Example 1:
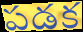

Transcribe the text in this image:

పడక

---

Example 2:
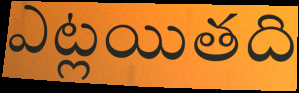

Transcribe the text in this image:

ఎట్లయితది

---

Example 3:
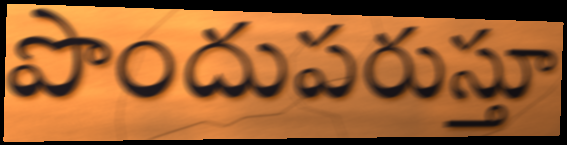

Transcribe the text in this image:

పొందుపరుస్తూ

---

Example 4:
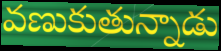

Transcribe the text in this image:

వణుకుతున్నాడు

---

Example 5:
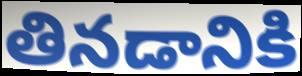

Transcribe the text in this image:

తినడానికి